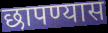
छापण्यास